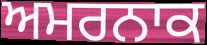
ਅਮਰਨਾਕ